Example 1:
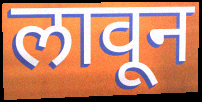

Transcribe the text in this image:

लावून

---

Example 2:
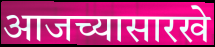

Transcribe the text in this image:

आजच्यासारखे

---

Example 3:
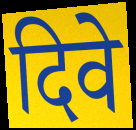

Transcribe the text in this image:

दिवे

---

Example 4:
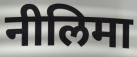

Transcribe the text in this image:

नीलिमा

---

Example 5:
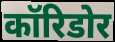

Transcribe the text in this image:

कॉरिडोर